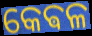
କେଵଳ